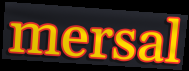
mersal